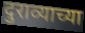
दुराव्याच्या